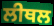
ਲੀਥਲ